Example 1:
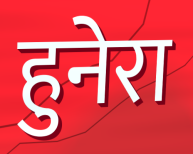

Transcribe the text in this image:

हुनेरा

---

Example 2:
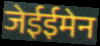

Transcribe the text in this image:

जेईईमेन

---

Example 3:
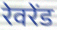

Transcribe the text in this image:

रेवरेंड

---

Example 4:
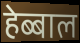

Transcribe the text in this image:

हेब्बाल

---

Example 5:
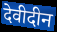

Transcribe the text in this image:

देवीदीन